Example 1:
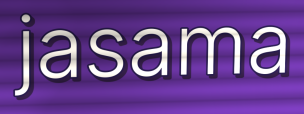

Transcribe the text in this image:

jasama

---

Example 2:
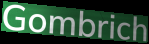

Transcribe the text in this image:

Gombrich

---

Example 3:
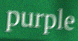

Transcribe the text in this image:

purple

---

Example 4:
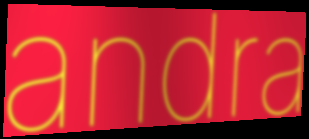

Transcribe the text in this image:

andra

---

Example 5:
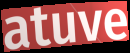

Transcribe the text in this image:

atuve